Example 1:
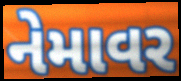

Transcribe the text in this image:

નેમાવર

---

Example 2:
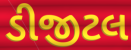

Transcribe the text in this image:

ડીજીટલ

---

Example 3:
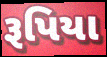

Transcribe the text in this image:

રૂપિયા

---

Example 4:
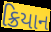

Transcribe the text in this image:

ક્રિયાન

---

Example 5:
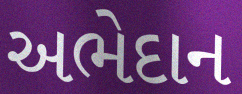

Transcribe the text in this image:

અભેદાન